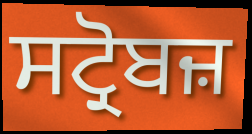
ਸਟ੍ਰੋਬਜ਼